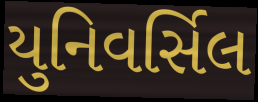
યુનિવર્સિલ